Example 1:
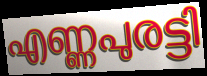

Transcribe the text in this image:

എണ്ണപുരട്ടി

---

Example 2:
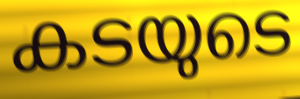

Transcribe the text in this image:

കടയുടെ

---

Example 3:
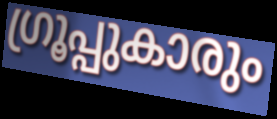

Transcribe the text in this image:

ഗ്രൂപ്പുകാരും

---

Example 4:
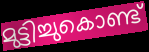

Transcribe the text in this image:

മുട്ടിച്ചുകൊണ്ട്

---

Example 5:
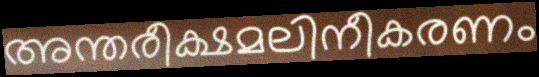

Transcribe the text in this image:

അന്തരീക്ഷമലിനീകരണം